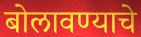
बोलावण्याचे